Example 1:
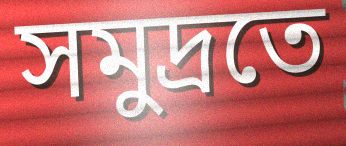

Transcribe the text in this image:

সমুদ্ৰতে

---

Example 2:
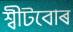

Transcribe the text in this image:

শ্বীটবোৰ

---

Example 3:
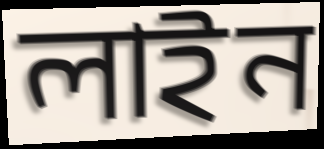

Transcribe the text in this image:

লাইন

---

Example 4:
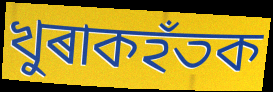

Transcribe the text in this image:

খুৰাকহঁতক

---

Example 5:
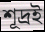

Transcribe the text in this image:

শূদ্ৰই